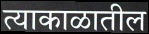
त्याकाळातील